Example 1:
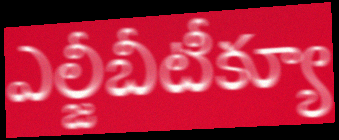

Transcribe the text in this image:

ఎల్జీబీటీక్యూ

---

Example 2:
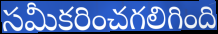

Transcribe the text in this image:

సమీకరించగలిగింది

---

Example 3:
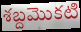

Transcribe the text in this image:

శబ్దమొకటి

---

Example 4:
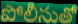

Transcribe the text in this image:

పోలీసుతో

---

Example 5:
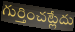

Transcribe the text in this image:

గుర్తించట్లేదు